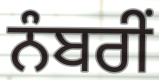
ਨੰਬਰੀਂ